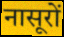
नासूरों